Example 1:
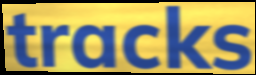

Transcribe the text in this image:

tracks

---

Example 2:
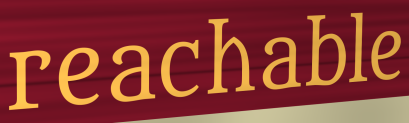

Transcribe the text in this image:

reachable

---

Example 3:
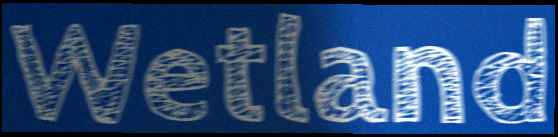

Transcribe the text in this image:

Wetland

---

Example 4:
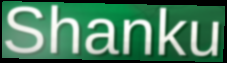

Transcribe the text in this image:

Shanku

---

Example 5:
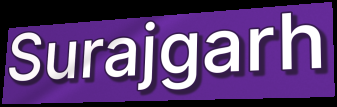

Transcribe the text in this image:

Surajgarh